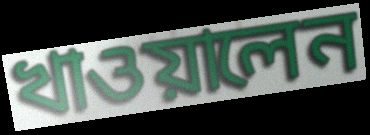
খাওয়ালেন